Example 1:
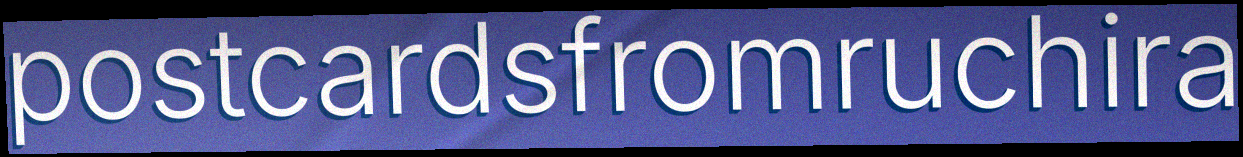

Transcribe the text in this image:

postcardsfromruchira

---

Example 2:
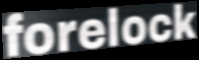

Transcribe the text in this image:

forelock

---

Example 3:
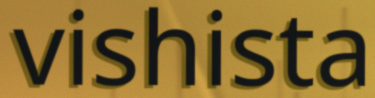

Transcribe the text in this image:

vishista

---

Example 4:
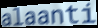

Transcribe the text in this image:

alaanti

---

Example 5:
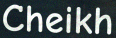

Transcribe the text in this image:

Cheikh